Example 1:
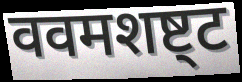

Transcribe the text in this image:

ववमशष्ट्ट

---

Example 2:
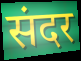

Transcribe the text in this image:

संदर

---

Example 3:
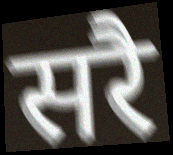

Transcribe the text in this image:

सरै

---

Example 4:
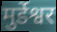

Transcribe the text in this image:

मुर्डेश्वर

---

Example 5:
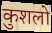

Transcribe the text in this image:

कुशलो